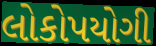
લોકોપયોગી